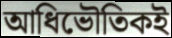
আধিভৌতিকই